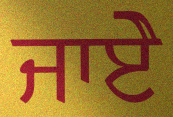
ਜਾਏੇ